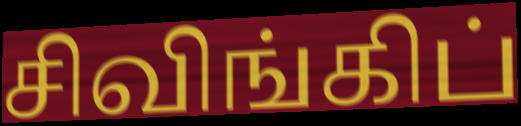
சிவிங்கிப்